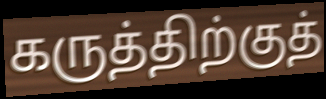
கருத்திற்குத்